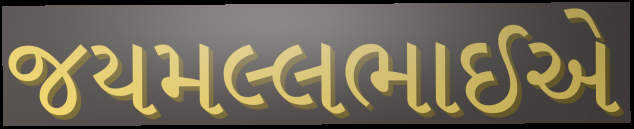
જયમલ્લભાઈએ